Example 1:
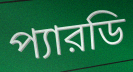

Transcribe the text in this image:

প্যারডি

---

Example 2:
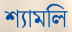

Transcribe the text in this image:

শ্যামলি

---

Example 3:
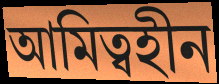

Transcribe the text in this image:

আমিত্বহীন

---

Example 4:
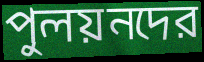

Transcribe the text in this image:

পুলয়নদের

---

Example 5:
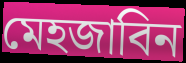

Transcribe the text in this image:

মেহজাবিন